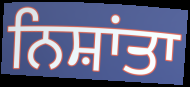
ਨਿਸ਼ਾਂਤਾ